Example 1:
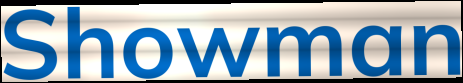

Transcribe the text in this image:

Showman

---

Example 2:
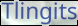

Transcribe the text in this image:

Tlingits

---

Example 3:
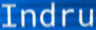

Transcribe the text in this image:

Indru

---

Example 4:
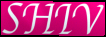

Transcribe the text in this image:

SHIV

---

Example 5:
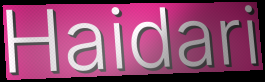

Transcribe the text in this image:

Haidari